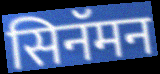
सिनॅमन